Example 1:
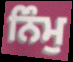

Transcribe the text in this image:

ਨਿੰਮੁ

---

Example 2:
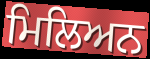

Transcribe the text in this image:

ਮਿਲਿਅਨ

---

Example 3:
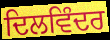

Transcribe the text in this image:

ਦਿਲਵਿੰਦਰ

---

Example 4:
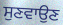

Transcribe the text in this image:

ਸੁਣਵਾਉਣ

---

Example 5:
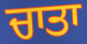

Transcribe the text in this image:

ਚਾਤਾ